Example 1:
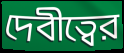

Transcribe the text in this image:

দেবীত্বের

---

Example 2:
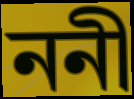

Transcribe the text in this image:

ননী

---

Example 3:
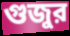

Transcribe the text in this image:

গুজুর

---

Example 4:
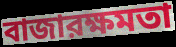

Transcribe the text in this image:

বাজারক্ষমতা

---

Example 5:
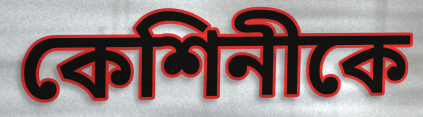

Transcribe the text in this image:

কেশিনীকে